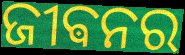
ଜୀଵନର